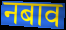
नबाव